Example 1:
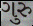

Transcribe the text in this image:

ગુરુ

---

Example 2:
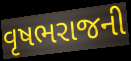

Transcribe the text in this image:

વૃષભરાજની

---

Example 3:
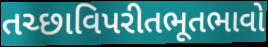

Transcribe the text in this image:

તચ્છાવિપરીતભૂતભાવો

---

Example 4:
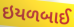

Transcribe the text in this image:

ઇયળબાઈ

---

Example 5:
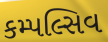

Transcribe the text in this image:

કમ્પલ્સિવ